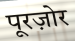
पूरज़ोर